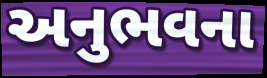
અનુભવના